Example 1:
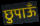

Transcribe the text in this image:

छुपाऊँ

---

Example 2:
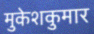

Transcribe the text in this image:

मुकेशकुमार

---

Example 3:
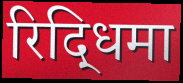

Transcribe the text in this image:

रिद्धिमा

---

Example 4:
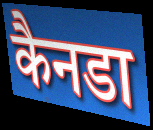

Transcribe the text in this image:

कैनडा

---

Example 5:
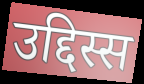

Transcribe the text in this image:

उद्दिस्स